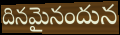
దినమైనందున